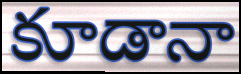
కూడానా